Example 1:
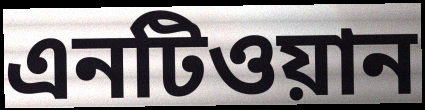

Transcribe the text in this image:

এনটিওয়ান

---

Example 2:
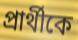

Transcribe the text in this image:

প্রার্থীকে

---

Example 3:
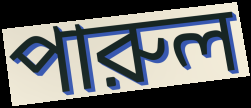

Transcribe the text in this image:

পারুল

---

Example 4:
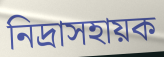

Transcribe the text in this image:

নিদ্রাসহায়ক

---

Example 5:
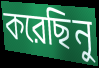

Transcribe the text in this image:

করেছিনু